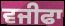
ਵਜੀਫਾ